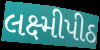
લક્ષ્મીપીઠ